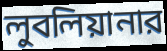
লুবলিয়ানার